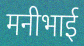
मनीभाई